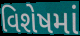
વિશેષમાં